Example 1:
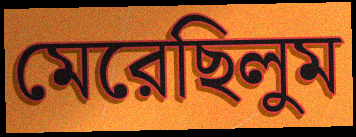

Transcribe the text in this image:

মেরেছিলুম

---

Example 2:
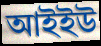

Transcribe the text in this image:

আইইউ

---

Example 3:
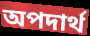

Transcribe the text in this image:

অপদার্থ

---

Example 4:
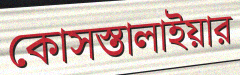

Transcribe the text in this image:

কোসস্তালাইয়ার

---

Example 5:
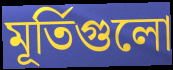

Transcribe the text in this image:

মূর্তিগুলো